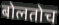
बोलतोच